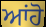
ਆਂਹੋ